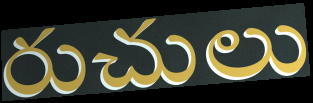
రుచులు